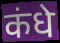
कंधे